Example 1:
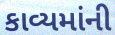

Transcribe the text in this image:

કાવ્યમાંની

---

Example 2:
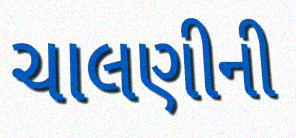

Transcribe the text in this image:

ચાલણીની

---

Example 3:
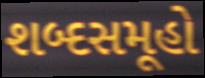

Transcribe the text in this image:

શબ્દસમૂહો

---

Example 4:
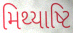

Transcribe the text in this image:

મિથ્યાષ્ટિ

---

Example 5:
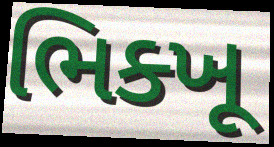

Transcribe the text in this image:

ભિક્ખૂ